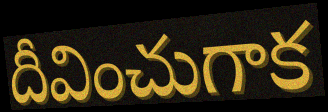
దీవించుగాక